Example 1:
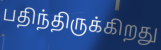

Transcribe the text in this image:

பதிந்திருக்கிறது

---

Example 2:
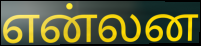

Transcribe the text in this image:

என்லன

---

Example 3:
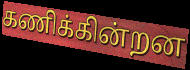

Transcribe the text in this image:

கணிக்கின்றன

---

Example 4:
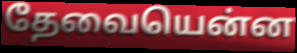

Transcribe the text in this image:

தேவையென்ன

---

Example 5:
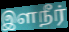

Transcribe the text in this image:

இளநீர்